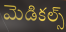
మెడికల్స్